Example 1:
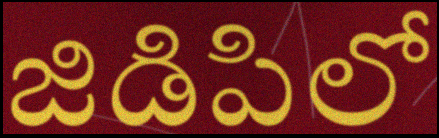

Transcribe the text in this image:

జిడిపిలో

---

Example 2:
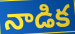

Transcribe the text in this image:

నాడిక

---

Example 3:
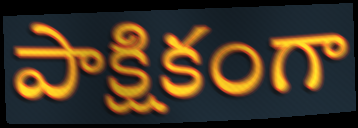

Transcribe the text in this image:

పాక్షికంగా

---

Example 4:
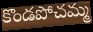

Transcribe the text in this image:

కొండపోచమ్మ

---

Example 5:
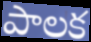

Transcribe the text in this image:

పాలక